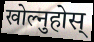
खोल्नुहोस्